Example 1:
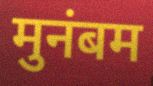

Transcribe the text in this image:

मुनंबम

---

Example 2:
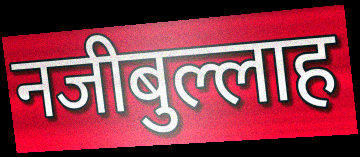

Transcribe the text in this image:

नजीबुल्लाह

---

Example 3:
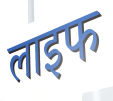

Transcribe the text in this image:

लाइफ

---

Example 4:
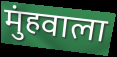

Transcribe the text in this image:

मुंहवाला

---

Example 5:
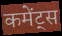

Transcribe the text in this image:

कमेंट्स